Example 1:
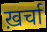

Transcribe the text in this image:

ख़र्चा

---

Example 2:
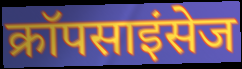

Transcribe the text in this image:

क्रॉपसाइंसेज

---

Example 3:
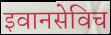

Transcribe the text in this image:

इवानसेविच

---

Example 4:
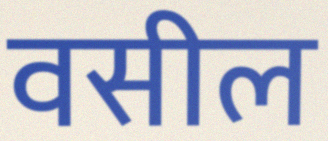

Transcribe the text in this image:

वसील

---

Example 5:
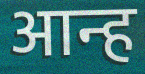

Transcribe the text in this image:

आन्ह